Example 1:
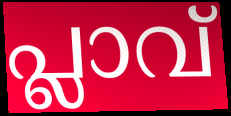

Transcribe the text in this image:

പ്ലാവ്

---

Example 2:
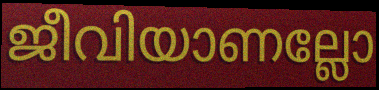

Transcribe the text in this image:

ജീവിയാണല്ലോ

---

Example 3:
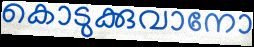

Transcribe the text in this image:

കൊടുക്കുവാനോ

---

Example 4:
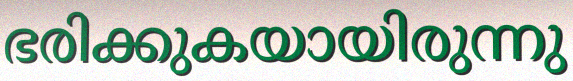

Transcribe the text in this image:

ഭരിക്കുകയായിരുന്നു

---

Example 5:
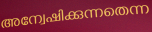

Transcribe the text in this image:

അന്വേഷിക്കുന്നതെന്ന